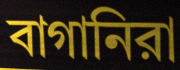
বাগানিরা